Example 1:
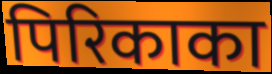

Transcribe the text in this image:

पिरिकाका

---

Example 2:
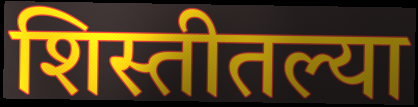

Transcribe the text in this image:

शिस्तीतल्या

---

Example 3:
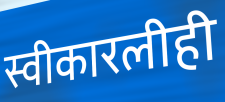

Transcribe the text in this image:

स्वीकारलीही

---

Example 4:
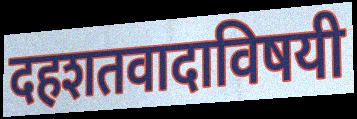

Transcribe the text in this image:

दहशतवादाविषयी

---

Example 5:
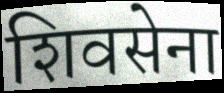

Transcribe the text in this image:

शिवसेना